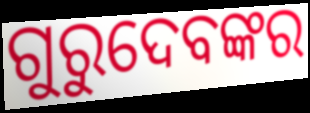
ଗୁରୁଦେବଙ୍କର